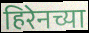
हिरेनच्या